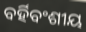
ବର୍ହିବଂଶୀୟ